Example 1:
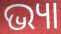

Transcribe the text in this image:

ଭ୍ୟା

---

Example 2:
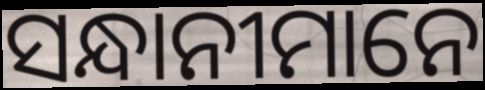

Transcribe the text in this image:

ସନ୍ଧାନୀମାନେ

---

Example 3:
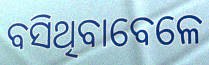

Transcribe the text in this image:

ବସିଥିବାବେଳେ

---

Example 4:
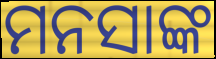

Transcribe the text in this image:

ମନସାଙ୍କ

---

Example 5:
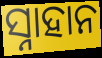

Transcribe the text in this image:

ସ୍ନାହାନ